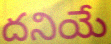
దనియే